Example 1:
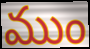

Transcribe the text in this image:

ముం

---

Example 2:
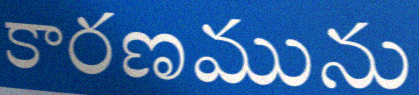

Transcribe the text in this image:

కారణమును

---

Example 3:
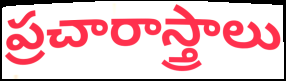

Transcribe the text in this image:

ప్రచారాస్త్రాలు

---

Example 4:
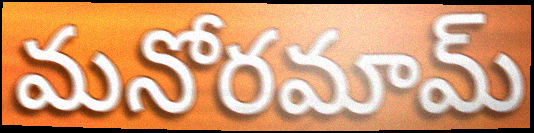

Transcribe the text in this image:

మనోరమామ్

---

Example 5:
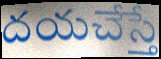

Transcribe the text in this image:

దయచేస్తే